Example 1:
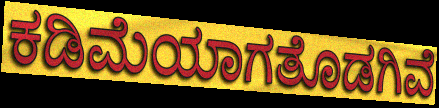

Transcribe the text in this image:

ಕಡಿಮೆಯಾಗತೊಡಗಿವೆ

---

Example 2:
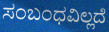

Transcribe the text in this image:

ಸಂಬಂಧವಿಲ್ಲದೆ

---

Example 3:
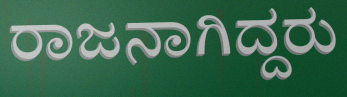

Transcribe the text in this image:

ರಾಜನಾಗಿದ್ದರು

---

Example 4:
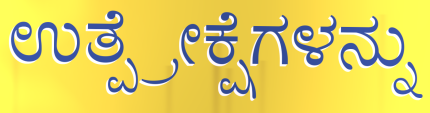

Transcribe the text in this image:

ಉತ್ಪ್ರೇಕ್ಷೆಗಳನ್ನು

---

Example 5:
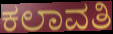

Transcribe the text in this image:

ಕಲಾವತಿ